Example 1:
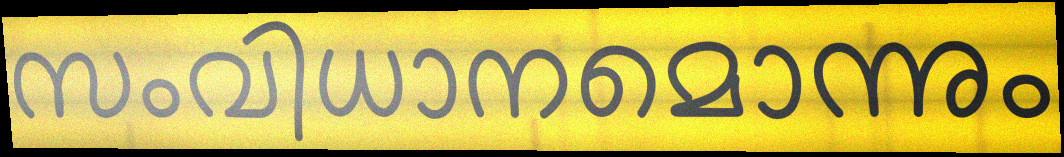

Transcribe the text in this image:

സംവിധാനമൊന്നും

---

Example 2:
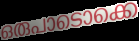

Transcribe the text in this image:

ഒരുപാടൊക്കെ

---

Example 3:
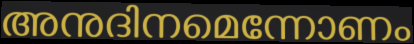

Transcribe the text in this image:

അനുദിനമെന്നോണം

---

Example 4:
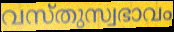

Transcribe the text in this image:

വസ്തുസ്വഭാവം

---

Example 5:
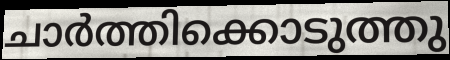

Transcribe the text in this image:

ചാർത്തിക്കൊടുത്തു